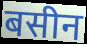
बसीन